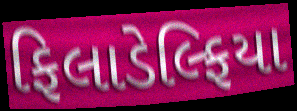
ફિલાડેલ્ફિયા